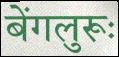
बेंगलुरूः